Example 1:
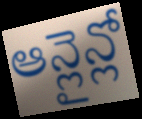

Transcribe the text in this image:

ఆన్లైన్లో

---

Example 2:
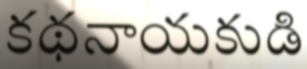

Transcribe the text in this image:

కథనాయకుడి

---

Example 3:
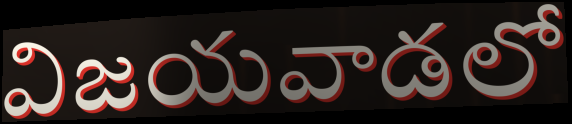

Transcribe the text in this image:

విజయవాడలో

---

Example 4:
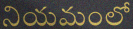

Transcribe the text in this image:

నియమంలో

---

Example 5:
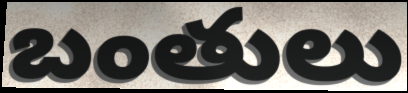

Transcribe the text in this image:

బంతులు